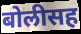
बोलीसह